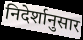
निदेर्शानुसार